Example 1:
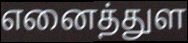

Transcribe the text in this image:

எனைத்துள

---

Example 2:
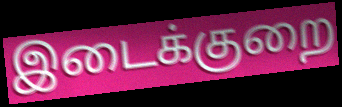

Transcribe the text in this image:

இடைக்குறை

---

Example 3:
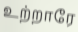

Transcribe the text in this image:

உற்றாரே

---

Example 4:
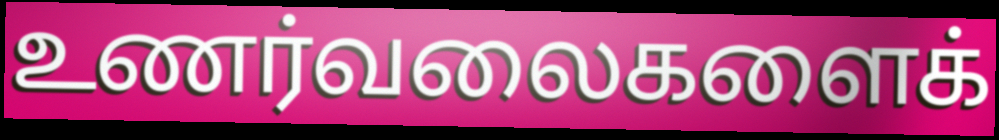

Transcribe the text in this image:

உணர்வலைகளைக்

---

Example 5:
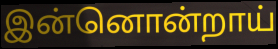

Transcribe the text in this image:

இன்னொன்றாய்